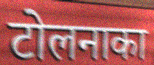
टोलनाका